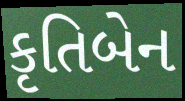
કૃતિબેન